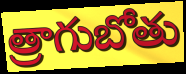
త్రాగుబోతు